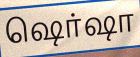
ஷெர்ஷா